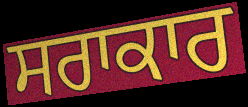
ਸਰਾਕਾਰ